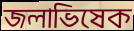
জলাভিষেক